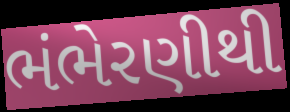
ભંભેરણીથી